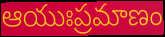
ఆయుఃప్రమాణం